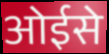
ओईसे